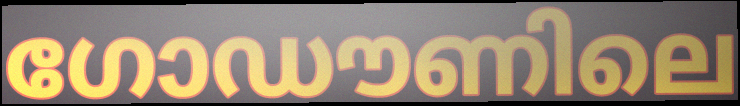
ഗോഡൗണിലെ